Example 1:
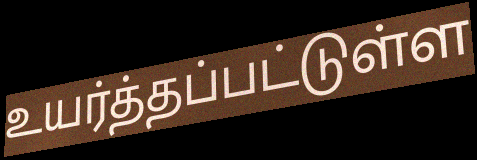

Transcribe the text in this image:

உயர்த்தப்பட்டுள்ள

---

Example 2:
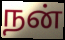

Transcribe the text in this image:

நன்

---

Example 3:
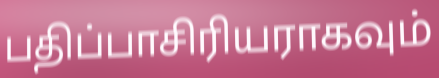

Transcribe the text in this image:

பதிப்பாசிரியராகவும்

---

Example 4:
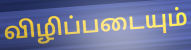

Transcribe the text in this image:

விழிப்படையும்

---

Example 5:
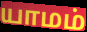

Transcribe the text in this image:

யாமம்